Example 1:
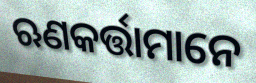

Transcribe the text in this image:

ଋଣକର୍ତ୍ତାମାନେ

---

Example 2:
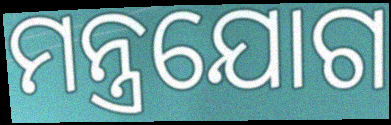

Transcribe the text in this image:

ମନ୍ତ୍ରଯୋଗ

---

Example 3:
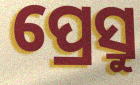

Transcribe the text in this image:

ପ୍ରେସ୍ରୁ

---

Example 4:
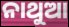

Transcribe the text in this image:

ନାଥୁଆ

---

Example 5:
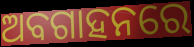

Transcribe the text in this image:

ଅବଗାହନରେ